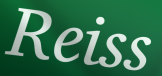
Reiss